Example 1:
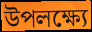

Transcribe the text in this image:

উপলক্ষ্যে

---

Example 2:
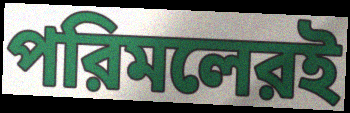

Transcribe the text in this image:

পরিমলেরই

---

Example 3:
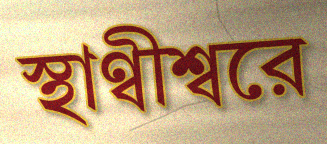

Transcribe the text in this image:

স্থাণ্বীশ্বরে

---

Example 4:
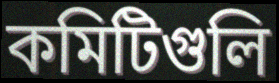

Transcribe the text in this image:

কমিটিগুলি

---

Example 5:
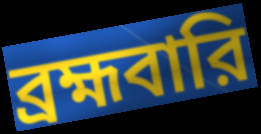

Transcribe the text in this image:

ব্রহ্মবারি